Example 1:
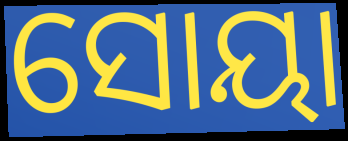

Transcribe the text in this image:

ସୋୟା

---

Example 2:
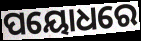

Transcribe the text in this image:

ପୟୋଧରେ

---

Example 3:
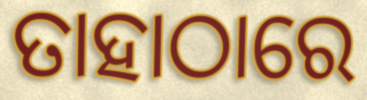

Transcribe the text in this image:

ତାହାଠାରେ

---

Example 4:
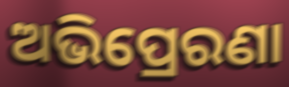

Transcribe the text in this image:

ଅଭିପ୍ରେରଣା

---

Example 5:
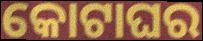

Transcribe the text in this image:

କୋଟାଘର